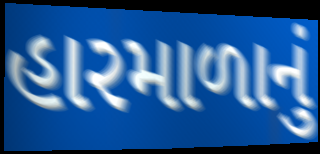
હારમાળાનું